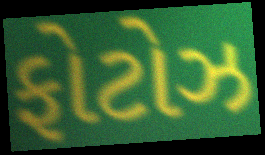
ફોટોઝ